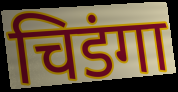
चिडंगा